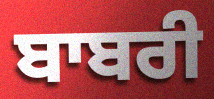
ਬਾਬਰੀ